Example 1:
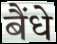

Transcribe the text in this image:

बैंधे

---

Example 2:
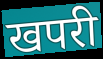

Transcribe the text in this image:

खपरी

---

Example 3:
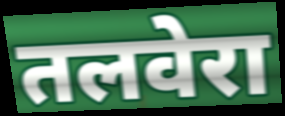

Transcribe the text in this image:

तलवेरा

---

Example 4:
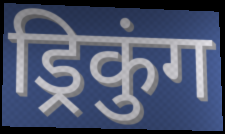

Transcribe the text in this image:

ड्रिकुंग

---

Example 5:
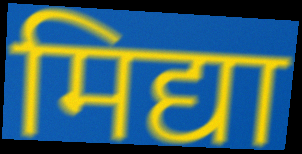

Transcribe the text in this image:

मिद्या